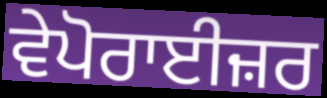
ਵੇਪੋਰਾਈਜ਼ਰ